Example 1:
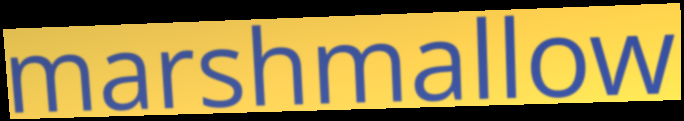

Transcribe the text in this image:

marshmallow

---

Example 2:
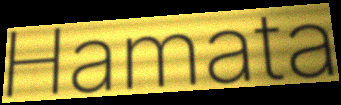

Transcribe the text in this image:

Hamata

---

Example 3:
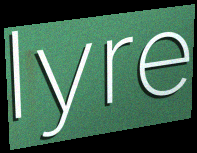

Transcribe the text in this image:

Iyre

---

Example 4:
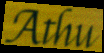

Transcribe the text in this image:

Athu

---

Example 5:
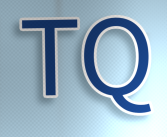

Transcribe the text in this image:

TQ